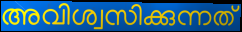
അവിശ്വസിക്കുന്നത്